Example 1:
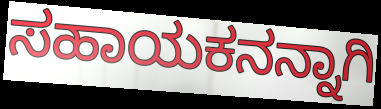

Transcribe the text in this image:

ಸಹಾಯಕನನ್ನಾಗಿ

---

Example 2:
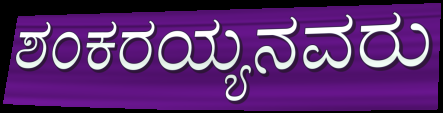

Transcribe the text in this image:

ಶಂಕರಯ್ಯನವರು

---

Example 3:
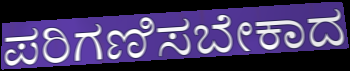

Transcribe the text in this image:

ಪರಿಗಣಿಸಬೇಕಾದ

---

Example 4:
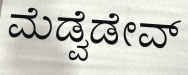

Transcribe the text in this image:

ಮೆಡ್ವೆಡೇವ್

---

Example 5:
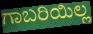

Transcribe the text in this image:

ಗಾಬರಿಯಿಲ್ಲ